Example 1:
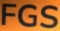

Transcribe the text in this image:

FGS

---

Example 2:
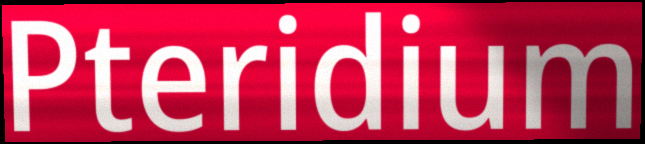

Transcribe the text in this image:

Pteridium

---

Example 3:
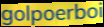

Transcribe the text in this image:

golpoerboi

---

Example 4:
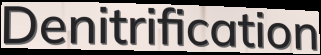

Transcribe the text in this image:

Denitrification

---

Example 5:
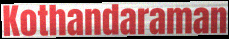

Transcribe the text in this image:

Kothandaraman